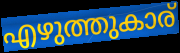
എഴുത്തുകാര്